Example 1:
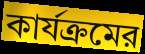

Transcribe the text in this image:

কার্যক্রমের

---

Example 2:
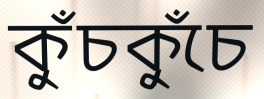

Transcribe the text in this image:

কুঁচকুঁচে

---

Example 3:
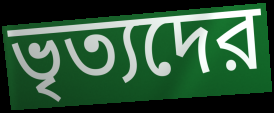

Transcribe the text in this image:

ভৃত্যদের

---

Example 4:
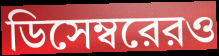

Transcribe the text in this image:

ডিসেম্বরেরও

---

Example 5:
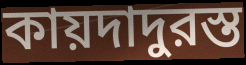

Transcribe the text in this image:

কায়দাদুরস্ত